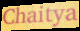
Chaitya